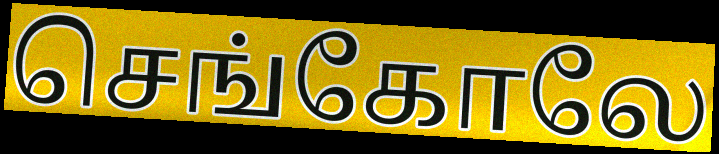
செங்கோலே